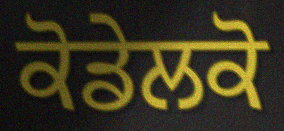
ਕੋਡੇਲਕੋ